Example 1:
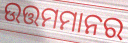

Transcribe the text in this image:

ଉତ୍ତମମାନର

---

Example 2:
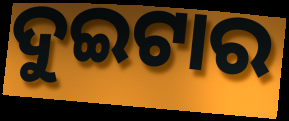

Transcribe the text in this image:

ଦୁଇଟାର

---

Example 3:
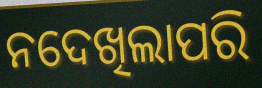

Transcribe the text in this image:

ନଦେଖିଲାପରି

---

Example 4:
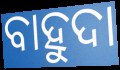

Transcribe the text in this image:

ବାହୁଦା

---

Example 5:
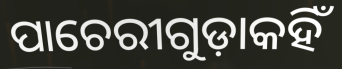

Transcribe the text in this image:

ପାଚେରୀଗୁଡ଼ାକହିଁ